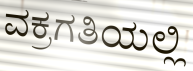
ವಕ್ರಗತಿಯಲ್ಲಿ